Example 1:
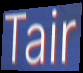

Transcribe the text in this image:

Tair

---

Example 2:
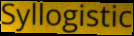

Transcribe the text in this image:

Syllogistic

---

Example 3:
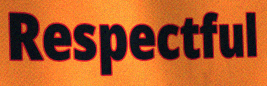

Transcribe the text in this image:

Respectful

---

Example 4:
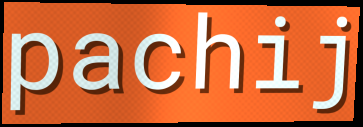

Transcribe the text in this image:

pachij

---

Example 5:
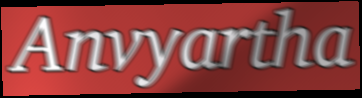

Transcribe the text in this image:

Anvyartha